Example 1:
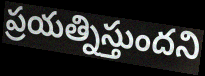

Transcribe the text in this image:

ప్రయత్నిస్తుందని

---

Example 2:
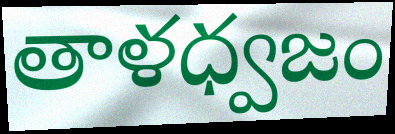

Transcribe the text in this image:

తాళధ్వజం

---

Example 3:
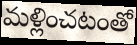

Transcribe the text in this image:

మళ్లించటంతో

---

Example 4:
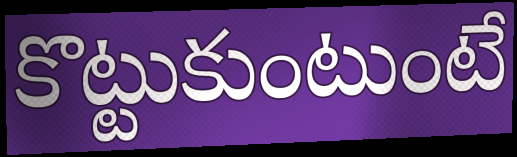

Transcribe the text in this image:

కొట్టుకుంటుంటే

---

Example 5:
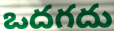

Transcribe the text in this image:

ఒదగదు